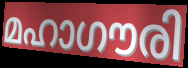
മഹാഗൗരി